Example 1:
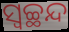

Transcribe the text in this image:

ସ୍ୱଚ୍ଛନ୍ଦ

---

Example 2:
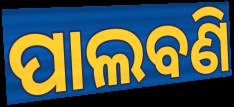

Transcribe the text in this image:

ପାଲବଣି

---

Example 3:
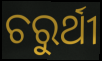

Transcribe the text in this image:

ଚରୁର୍ଥୀ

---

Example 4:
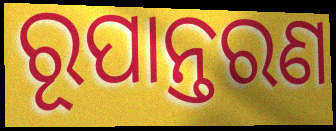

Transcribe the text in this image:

ରୂପାନ୍ତରଣ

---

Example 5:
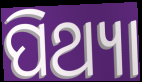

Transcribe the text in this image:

ପିଥ୍ୟା